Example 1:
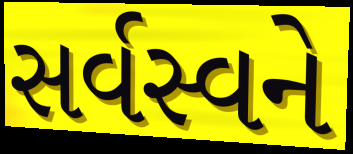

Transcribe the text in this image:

સર્વસ્વને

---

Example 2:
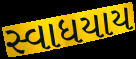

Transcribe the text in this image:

સ્વાધયાય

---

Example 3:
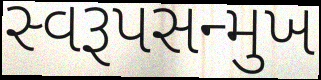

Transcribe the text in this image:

સ્વરૂપસન્મુખ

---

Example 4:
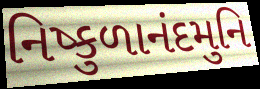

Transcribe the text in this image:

નિષ્કુળાનંદમુનિ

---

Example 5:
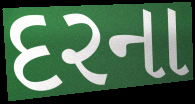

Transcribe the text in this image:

દરના